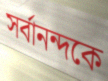
সর্বানন্দকে